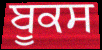
ਬੂਕਸ